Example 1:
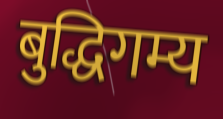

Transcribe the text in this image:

बुद्धिगम्य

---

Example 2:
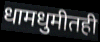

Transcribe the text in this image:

धामधुमीतही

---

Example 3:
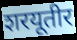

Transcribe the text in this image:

शरयूतीर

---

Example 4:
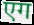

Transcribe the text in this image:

एग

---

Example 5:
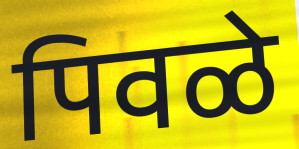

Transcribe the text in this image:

पिवळे